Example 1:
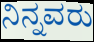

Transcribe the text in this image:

ನಿನ್ನವರು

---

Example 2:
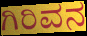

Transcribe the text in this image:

ಗಿರಿವನ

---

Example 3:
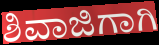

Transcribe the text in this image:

ಶಿವಾಜಿಗಾಗಿ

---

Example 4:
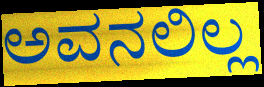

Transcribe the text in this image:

ಅವನಲಿಲ್ಲ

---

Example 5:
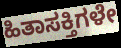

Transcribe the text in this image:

ಹಿತಾಸಕ್ತಿಗಳೇ